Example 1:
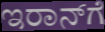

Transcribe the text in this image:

ಇರಾನ್‌ಗೆ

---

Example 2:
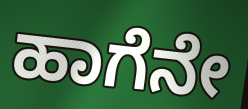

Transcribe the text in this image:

ಹಾಗೆನೇ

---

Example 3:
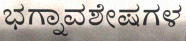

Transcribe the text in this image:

ಭಗ್ನಾವಶೇಷಗಳ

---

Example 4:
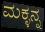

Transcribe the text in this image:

ಮಕ್ಳನ್ನ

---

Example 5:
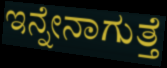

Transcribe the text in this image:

ಇನ್ನೇನಾಗುತ್ತೆ